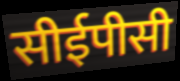
सीईपीसी